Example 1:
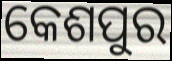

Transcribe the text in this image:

କେଶପୁର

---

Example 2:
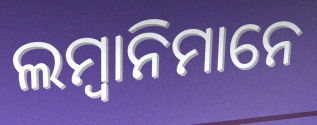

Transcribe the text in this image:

ଲମ୍ବାନିମାନେ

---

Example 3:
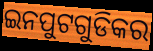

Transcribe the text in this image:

ଇନପୁଟଗୁଡିକର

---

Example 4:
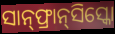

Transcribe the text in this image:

ସାନ୍‌ଫ୍ରାନ୍‌ସିସ୍କୋ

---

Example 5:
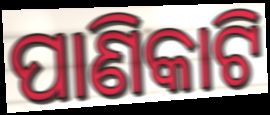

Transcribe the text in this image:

ପାଣିକାଟି